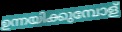
ഉന്നയിക്കുമ്പോള്